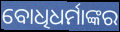
ବୋଧିଧର୍ମାଙ୍କର